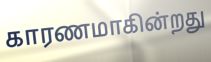
காரணமாகின்றது